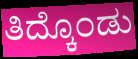
ತಿದ್ಕೊಂಡು